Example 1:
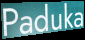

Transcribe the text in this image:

Paduka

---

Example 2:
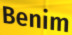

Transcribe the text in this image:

Benim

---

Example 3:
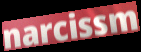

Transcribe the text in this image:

narcissm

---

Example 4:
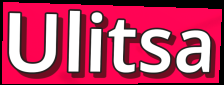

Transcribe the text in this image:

Ulitsa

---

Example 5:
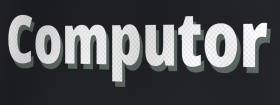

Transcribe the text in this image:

Computor